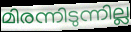
മിരന്നിടുന്നില്ല